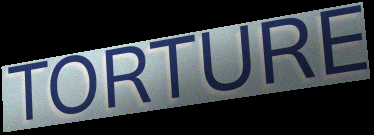
TORTURE